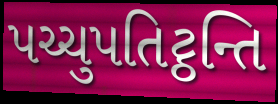
પચ્ચુપતિટ્ઠન્તિ